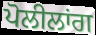
ਪੋਲੀਲਾਂਗ